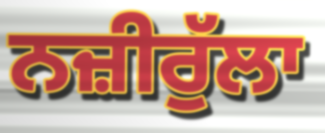
ਨਜ਼ੀਰੁੱਲਾ